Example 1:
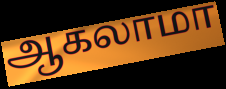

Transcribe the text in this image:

ஆகலாமா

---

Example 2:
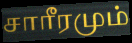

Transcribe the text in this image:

சாரீரமும்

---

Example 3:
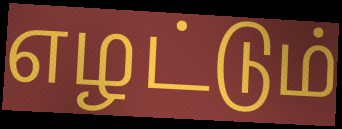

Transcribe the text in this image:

எழட்டும்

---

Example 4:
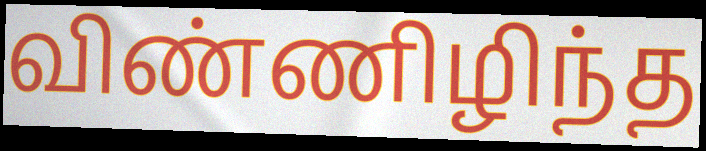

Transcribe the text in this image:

விண்ணிழிந்த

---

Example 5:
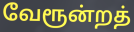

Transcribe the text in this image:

வேரூன்றத்